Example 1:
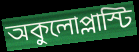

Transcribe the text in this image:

অকুলোপ্লাস্টি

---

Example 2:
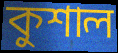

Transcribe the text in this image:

কুশাল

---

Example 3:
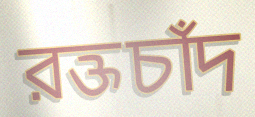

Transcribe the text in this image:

রক্তচাঁদ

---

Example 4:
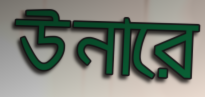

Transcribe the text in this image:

উনারে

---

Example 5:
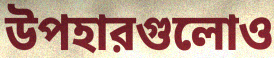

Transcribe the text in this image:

উপহারগুলোও